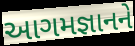
આગમજ્ઞાનને